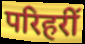
परिहरीं